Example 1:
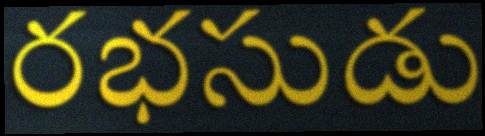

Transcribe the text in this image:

రభసుడు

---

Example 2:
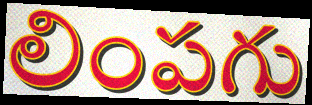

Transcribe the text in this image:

లింపగు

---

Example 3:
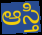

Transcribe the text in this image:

ఆస్తి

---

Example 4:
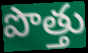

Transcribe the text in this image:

పొత్తు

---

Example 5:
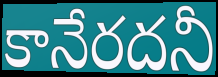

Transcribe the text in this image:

కానేరదనీ